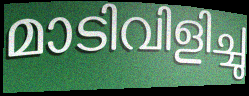
മാടിവിളിച്ചു